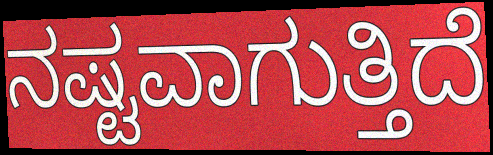
ನಷ್ಟವಾಗುತ್ತಿದೆ